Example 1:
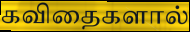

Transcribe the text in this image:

கவிதைகளால்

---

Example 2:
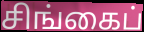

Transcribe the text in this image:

சிங்கைப்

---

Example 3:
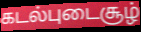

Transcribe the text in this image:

கடல்புடைசூழ்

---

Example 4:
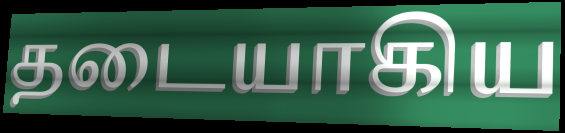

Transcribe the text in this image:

தடையாகிய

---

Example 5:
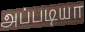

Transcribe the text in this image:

அப்படியா